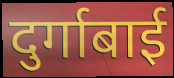
दुर्गाबाई